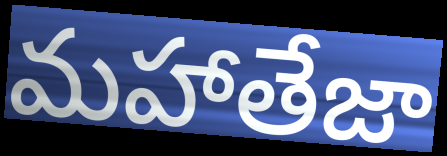
మహాతేజా